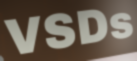
VSDs